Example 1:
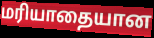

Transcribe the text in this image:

மரியாதையான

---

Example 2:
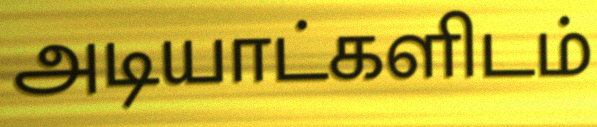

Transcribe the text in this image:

அடியாட்களிடம்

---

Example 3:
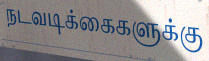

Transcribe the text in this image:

நடவடிக்கைகளுக்கு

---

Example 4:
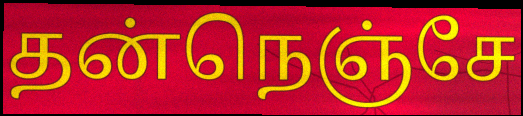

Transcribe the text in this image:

தன்நெஞ்சே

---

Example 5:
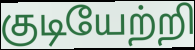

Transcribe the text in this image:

குடியேற்றி